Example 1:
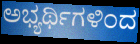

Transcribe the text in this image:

ಅಭ್ಯರ್ಥಿಗಳಿಂದ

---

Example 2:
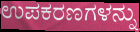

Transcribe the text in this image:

ಉಪಕರಣಗಳನ್ನು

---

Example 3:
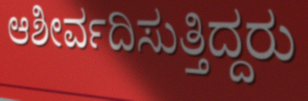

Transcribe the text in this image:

ಆಶೀರ್ವದಿಸುತ್ತಿದ್ದರು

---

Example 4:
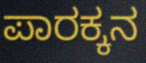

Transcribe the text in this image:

ಪಾರಕ್ಕನ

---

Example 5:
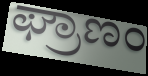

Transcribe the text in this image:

ಘ್ರಾಣಂ